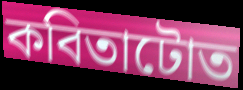
কবিতাটোত